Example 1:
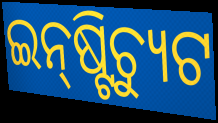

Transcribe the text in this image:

ଇନ୍‌ଷ୍ଟିଚ୍ୟୁଟ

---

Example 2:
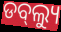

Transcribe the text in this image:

ଡବ୍‌ଲ୍ୟୁ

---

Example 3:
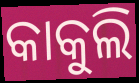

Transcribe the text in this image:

କାକୁଲି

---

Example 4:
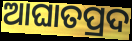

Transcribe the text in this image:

ଆଘାତପ୍ରଦ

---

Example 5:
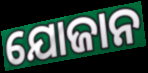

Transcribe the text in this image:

ଯୋଜାନ